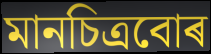
মানচিত্ৰবোৰ